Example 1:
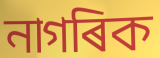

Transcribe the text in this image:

নাগৰিক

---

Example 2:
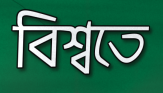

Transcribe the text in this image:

বিশ্বতে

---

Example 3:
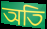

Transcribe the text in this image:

অতি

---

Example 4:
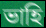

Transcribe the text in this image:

ভাহি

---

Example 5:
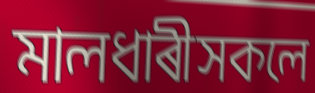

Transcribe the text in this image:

মালধাৰীসকলে